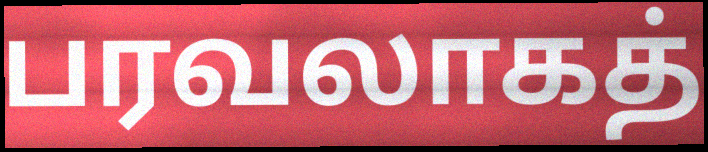
பரவலாகத்